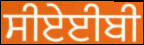
ਸੀਏਈਬੀ